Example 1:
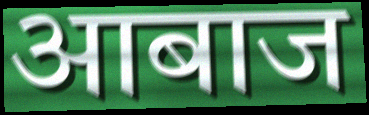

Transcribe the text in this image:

आबाज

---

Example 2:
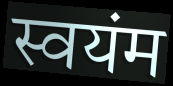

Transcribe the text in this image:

स्वयंम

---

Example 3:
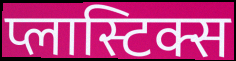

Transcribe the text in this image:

प्लास्टिक्स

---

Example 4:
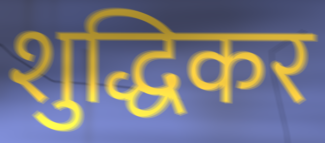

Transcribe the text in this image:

शुद्धिकर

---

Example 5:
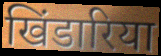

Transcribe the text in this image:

खिंडारिया